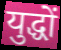
युद्धों